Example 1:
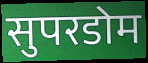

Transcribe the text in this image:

सुपरडोम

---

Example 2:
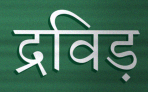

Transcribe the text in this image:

द्रविड़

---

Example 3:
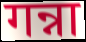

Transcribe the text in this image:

गन्ना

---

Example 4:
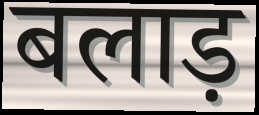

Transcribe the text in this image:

बलाड़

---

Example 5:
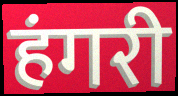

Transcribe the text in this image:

हंगरी